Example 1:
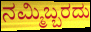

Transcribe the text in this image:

ನಮ್ಮಿಬ್ಬರದು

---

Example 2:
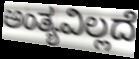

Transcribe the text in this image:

ಅಂತ್ಯವಿಲ್ಲದೆ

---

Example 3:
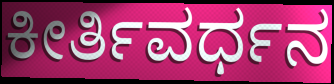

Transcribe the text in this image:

ಕೀರ್ತಿವರ್ಧನ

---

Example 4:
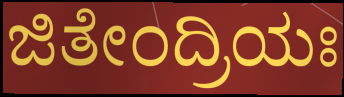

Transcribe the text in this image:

ಜಿತೇಂದ್ರಿಯಃ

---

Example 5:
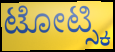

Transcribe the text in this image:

ಟೋಟ್ಸ್ಕಿ